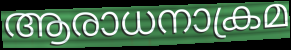
ആരാധനാക്രമ